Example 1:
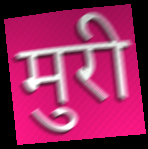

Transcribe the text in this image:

मुरी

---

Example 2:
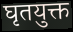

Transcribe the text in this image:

घृतयुक्त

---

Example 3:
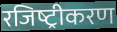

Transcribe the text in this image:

रजिष्ट्रीकरण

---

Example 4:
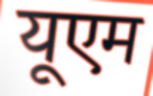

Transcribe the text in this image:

यूएम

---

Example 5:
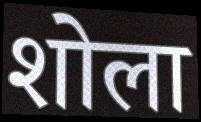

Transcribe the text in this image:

शोला